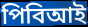
পিবিআই